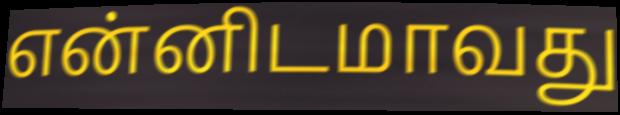
என்னிடமாவது